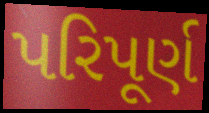
પરિપૂર્ણ